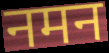
नमन